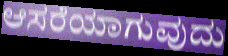
ಆಸರೆಯಾಗುವುದು